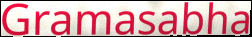
Gramasabha